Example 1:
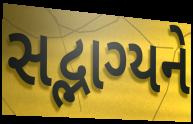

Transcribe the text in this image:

સદ્ભાગ્યને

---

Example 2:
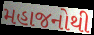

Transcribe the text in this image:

મહાજનોથી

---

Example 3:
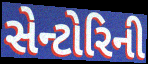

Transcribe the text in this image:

સેન્ટોરિની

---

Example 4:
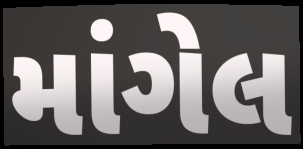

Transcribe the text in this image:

માંગેલ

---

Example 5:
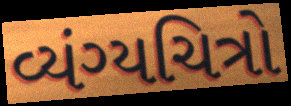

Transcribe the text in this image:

વ્યંગ્યચિત્રો